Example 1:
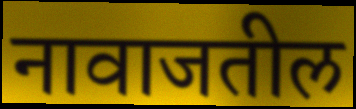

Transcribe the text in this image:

नावाजतील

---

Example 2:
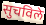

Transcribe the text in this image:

सुचविले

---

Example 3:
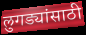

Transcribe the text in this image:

लुगड्यांसाठी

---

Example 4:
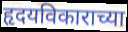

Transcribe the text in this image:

हृदयविकाराच्या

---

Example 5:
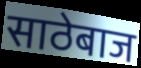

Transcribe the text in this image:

साठेबाज